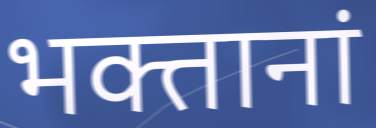
भक्तानां